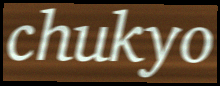
chukyo